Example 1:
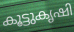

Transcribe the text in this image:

കൂട്ടുകൃഷി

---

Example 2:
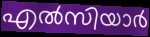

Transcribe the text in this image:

എൽസിയാർ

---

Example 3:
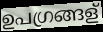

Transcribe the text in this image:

ഉപഗ്രങ്ങള്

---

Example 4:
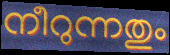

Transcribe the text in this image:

നീറുന്നതും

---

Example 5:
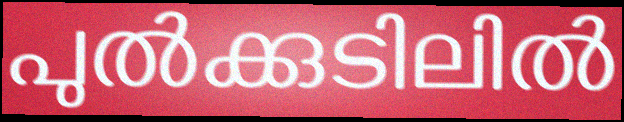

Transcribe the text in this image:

പുൽക്കുടിലിൽ